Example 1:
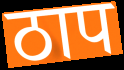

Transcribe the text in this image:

ठाप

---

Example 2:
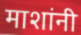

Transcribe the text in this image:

माशांनी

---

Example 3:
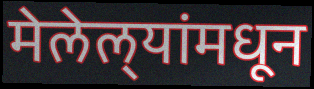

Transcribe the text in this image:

मेलेल्यांमधून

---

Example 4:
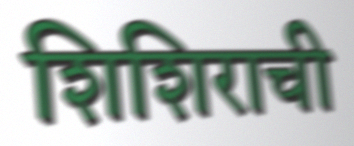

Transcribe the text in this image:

शिशिराची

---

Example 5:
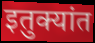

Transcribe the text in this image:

इतुक्यांत